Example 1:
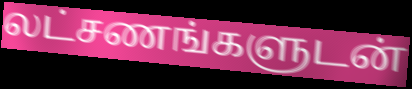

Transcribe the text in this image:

லட்சணங்களுடன்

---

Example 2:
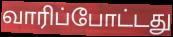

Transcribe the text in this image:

வாரிப்போட்டது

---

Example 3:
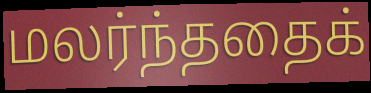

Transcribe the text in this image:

மலர்ந்ததைக்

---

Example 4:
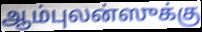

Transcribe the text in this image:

ஆம்புலன்ஸுக்கு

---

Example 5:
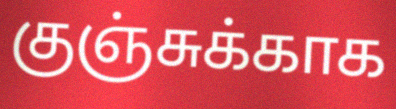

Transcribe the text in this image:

குஞ்சுக்காக